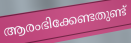
ആരംഭിക്കേണ്ടതുണ്ട്